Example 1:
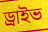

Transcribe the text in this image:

ড্রাইভ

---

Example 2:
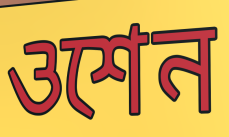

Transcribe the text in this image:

ওশেন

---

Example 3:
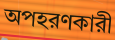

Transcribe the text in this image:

অপহরণকারী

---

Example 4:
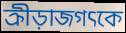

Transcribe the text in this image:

ক্রীড়াজগৎকে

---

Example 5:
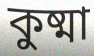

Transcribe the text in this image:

কুষ্মা